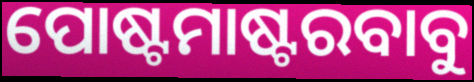
ପୋଷ୍ଟମାଷ୍ଟରବାବୁ